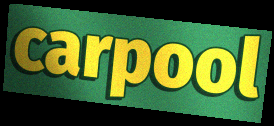
carpool